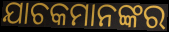
ଯାଚକମାନଙ୍କର